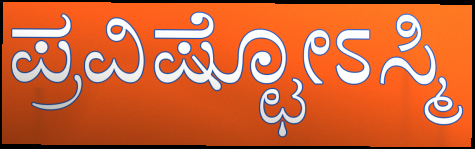
ಪ್ರವಿಷ್ಟೋಽಸ್ಮಿ